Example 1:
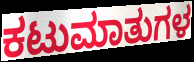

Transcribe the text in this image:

ಕಟುಮಾತುಗಳ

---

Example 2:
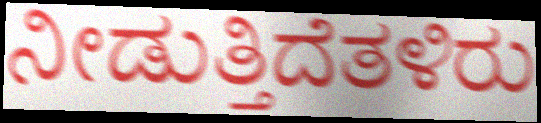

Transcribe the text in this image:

ನೀಡುತ್ತಿದೆತಳಿರು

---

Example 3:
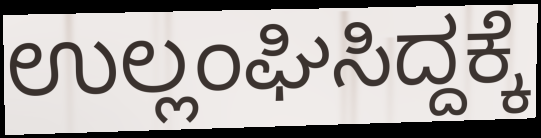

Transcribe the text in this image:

ಉಲ್ಲಂಘಿಸಿದ್ದಕ್ಕೆ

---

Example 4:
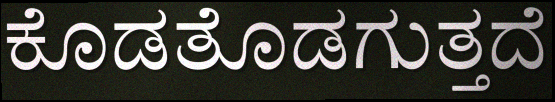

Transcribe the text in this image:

ಕೊಡತೊಡಗುತ್ತದೆ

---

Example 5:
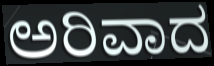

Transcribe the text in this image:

ಅರಿವಾದ